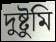
দুষ্টুমি